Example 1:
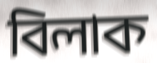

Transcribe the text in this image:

বিলাক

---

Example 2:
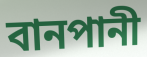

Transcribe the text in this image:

বানপানী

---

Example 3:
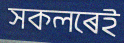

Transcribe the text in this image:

সকলৰেই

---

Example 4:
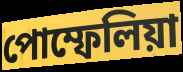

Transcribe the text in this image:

পোম্ফেলিয়া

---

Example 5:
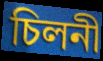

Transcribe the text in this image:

চিলনী